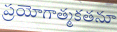
ప్రయోగాత్మకతనూ